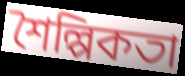
শৈল্পিকতা